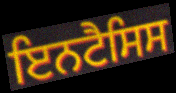
ਇਨਟੈਸਿਸ